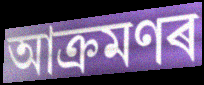
আক্ৰমণৰ